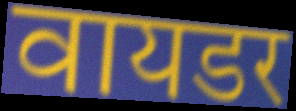
वायडर